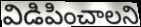
విడిపించాలని